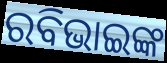
ରବିଭାଇଙ୍କ